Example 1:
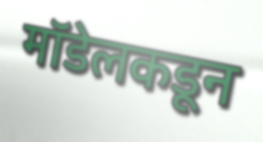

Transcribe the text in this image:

मॉडेलकडून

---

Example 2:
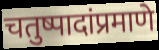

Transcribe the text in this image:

चतुष्पादांप्रमाणे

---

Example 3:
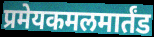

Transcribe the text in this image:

प्रमेयकमलमार्तंड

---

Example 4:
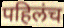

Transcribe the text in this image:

पहिलंच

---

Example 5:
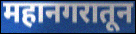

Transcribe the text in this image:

महानगरातून